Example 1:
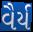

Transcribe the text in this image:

વૈર્ય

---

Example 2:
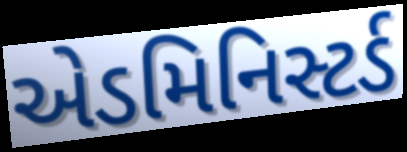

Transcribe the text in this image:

એડમિનિસ્ટર્ડ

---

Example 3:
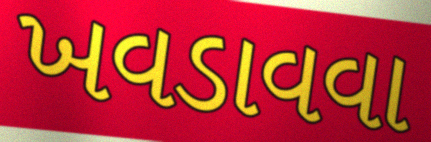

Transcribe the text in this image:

ખવડાવવા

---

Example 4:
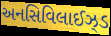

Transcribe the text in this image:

અનસિવિલાઈઝ્ડ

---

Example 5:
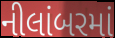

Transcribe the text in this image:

નીલાંબરમાં